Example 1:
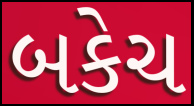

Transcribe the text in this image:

બકેચ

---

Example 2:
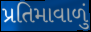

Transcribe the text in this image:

પ્રતિમાવાળું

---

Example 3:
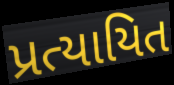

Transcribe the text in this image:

પ્રત્યાયિત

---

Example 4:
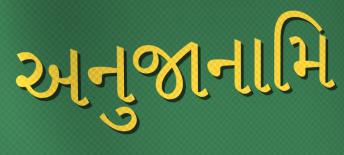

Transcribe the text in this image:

અનુજાનામિ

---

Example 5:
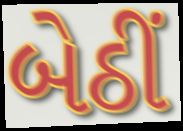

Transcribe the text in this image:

બેઠીં